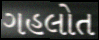
ગહલોત